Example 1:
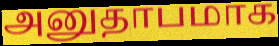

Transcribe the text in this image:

அனுதாபமாக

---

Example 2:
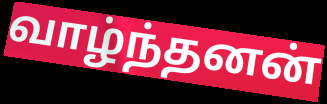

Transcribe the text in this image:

வாழ்ந்தனன்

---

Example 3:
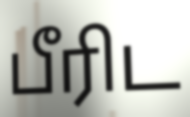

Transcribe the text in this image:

பீரிட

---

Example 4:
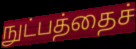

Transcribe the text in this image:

நுட்பத்தைச்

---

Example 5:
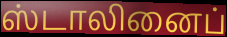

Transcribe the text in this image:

ஸ்டாலினைப்